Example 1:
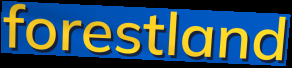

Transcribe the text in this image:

forestland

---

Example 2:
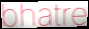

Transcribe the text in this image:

bhatre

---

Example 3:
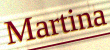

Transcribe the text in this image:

Martina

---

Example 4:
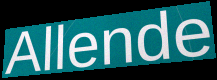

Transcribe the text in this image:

Allende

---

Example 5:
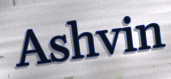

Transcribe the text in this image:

Ashvin